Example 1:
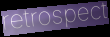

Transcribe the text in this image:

retrospect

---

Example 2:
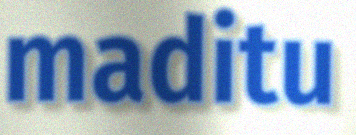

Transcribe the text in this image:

maditu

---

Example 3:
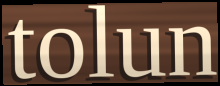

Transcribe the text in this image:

tolun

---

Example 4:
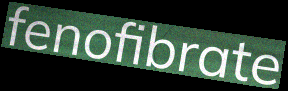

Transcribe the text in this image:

fenofibrate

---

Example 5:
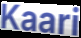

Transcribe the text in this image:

Kaari